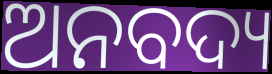
ଅନବଦ୍ୟ